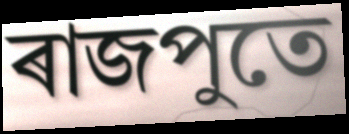
ৰাজপুতে